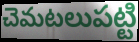
చెమటలుపట్టి